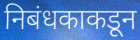
निबंधकाकडून